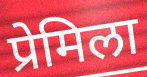
प्रेमिला